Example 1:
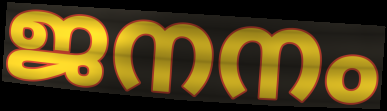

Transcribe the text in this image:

ജനനം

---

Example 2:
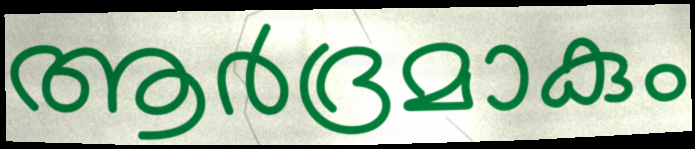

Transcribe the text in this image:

ആർദ്രമാകും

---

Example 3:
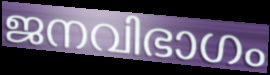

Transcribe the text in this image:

ജനവിഭാഗം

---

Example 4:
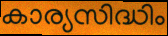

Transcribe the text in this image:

കാര്യസിദ്ധിം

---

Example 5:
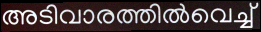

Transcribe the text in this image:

അടിവാരത്തിൽവെച്ച്